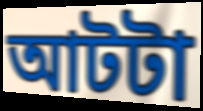
আটটা